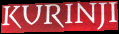
KURINJI